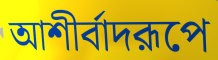
আশীর্বাদরূপে